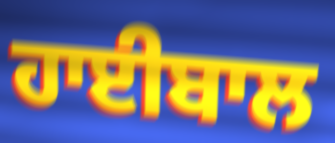
ਹਾਈਬਾਲ